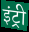
इंट्री